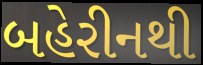
બહેરીનથી